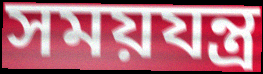
সময়যন্ত্র